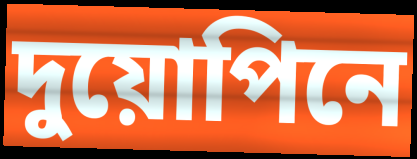
দুয়োপিনে